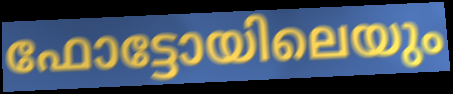
ഫോട്ടോയിലെയും